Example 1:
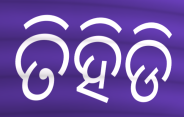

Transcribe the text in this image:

ତିହିଡି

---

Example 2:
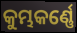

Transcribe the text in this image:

କୁମ୍ଭକର୍ଣ୍ଣେ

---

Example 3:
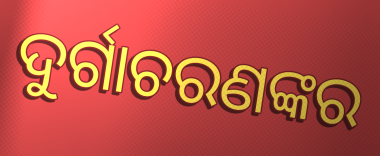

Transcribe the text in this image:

ଦୁର୍ଗାଚରଣଙ୍କର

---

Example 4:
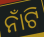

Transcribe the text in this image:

ନାଁଟି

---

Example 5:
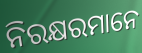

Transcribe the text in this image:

ନିରକ୍ଷରମାନେ